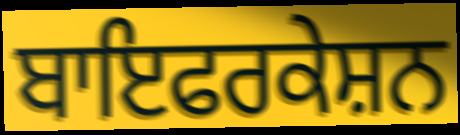
ਬਾਇਫਰਕੇਸ਼ਨ